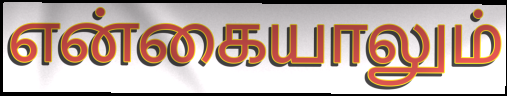
என்கையாலும்